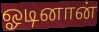
ஓடினான்